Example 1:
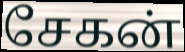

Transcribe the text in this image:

சேகன்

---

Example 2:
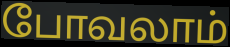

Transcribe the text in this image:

போவலாம்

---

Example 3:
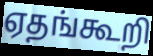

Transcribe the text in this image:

ஏதங்கூறி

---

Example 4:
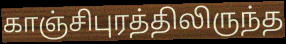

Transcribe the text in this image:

காஞ்சிபுரத்திலிருந்த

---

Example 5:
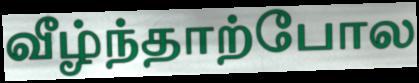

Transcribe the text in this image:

வீழ்ந்தாற்போல